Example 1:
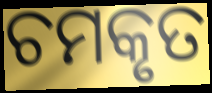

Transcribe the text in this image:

ଚମକୃତ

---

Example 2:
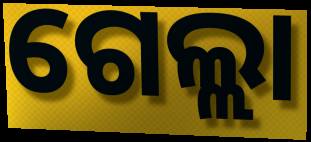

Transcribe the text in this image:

ଗେଲ୍ଲା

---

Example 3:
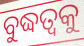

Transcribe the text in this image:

ବୁଦ୍ଧତ୍ଵକୁ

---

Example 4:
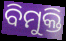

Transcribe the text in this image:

ବିମୁକ୍ତି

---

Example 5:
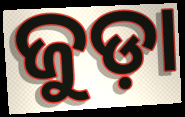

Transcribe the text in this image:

ଜୁଡ଼ା